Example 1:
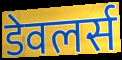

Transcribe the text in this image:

डेवलर्स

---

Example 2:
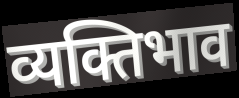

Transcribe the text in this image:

व्यक्तिभाव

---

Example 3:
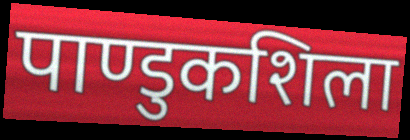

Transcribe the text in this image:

पाण्डुकशिला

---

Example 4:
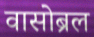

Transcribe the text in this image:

वासोब्रल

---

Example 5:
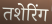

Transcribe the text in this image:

तशेरिंग